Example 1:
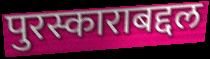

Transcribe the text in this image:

पुरस्काराबद्दल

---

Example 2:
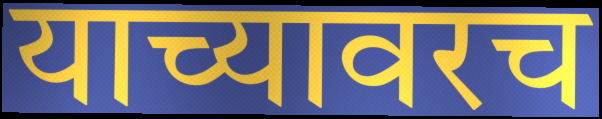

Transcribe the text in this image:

याच्यावरच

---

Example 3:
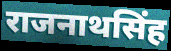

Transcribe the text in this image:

राजनाथसिंह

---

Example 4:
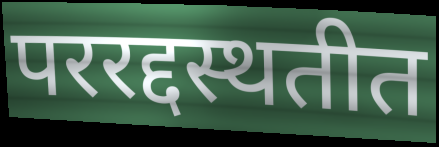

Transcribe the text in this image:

पररद्दस्थतीत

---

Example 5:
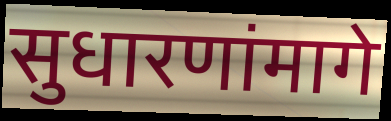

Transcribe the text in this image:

सुधारणांमागे